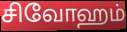
சிவோஹம்